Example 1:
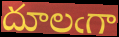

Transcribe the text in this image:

దూలఁగా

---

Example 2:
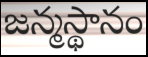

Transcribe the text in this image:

జన్మస్థానం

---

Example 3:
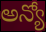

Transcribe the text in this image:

అన్యో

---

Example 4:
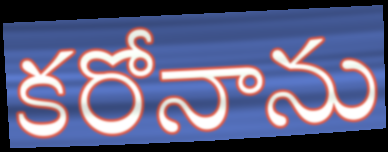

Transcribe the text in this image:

కరోనాను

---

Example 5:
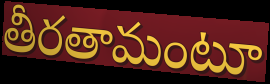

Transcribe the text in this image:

తీరతామంటూ